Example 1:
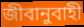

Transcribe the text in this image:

জীবানুবাহী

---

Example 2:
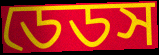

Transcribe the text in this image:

ডেডস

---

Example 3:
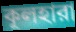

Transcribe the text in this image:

কূলহারা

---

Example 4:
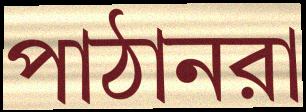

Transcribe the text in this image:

পাঠানরা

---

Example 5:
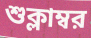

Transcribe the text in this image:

শুক্লাম্বর